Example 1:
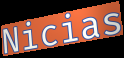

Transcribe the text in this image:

Nicias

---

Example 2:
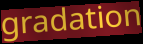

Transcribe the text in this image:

gradation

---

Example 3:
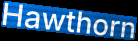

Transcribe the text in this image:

Hawthorn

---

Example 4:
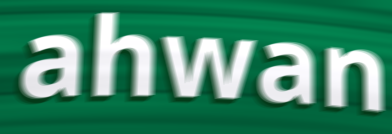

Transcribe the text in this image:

ahwan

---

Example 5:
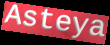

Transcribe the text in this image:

Asteya